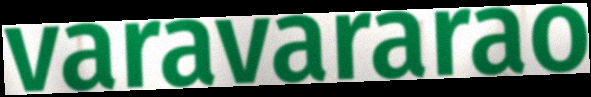
varavararao